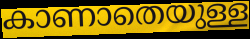
കാണാതെയുള്ള